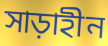
সাড়াহীন